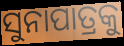
ସୁନାପାତ୍ରକୁ